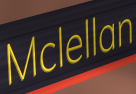
Mclellan